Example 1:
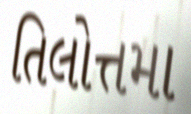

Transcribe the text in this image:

તિલોત્તમા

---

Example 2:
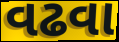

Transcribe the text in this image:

વઢવા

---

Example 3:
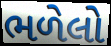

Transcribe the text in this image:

ભળેલો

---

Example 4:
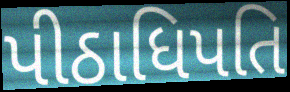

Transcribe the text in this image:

પીઠાધિપતિ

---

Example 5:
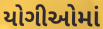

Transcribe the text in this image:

યોગીઓમાં